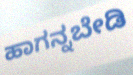
ಹಾಗನ್ನಬೇಡಿ